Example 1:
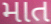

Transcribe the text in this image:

માત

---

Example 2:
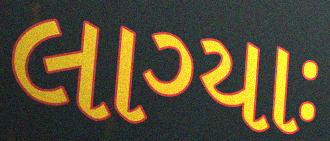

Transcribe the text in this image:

લાગ્યાઃ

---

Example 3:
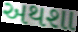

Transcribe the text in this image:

અથશા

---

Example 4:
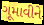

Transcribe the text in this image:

ગૂમાવીને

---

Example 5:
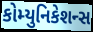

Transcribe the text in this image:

કોમ્યુનિકેશન્સ